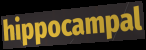
hippocampal